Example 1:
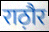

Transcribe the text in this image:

राठ़ौर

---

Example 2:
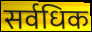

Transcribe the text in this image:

सर्वधिक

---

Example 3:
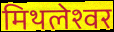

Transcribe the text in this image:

मिथलेश्वर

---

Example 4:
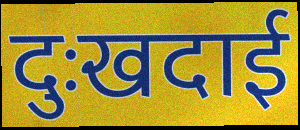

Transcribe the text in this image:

दुःखदाई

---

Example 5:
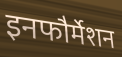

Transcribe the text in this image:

इनफौर्मेशन